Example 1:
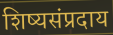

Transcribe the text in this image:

शिष्यसंप्रदाय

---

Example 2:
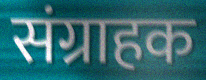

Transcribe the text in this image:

संग्राहक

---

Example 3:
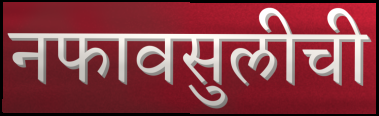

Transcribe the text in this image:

नफावसुलीची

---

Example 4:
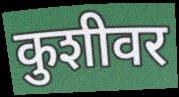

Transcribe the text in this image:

कुशीवर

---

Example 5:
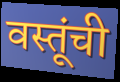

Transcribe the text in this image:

वस्तूंची